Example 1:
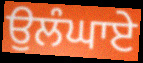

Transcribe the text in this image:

ਉਲੰਘਾਏ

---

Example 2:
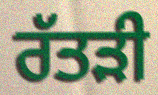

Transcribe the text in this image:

ਰੱਤੜੀ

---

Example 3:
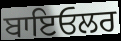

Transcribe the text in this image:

ਬਾਇਓਲਰ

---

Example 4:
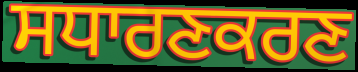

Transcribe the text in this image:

ਸਧਾਰਣਕਰਣ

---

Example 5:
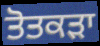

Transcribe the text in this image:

ਤੋਤਕੜਾ